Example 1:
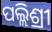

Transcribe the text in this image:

ପଲ୍ଲିଶ୍ରୀ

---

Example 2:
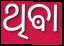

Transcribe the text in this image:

ଥିଵା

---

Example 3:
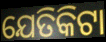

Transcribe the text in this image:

ଯେତିକିଟା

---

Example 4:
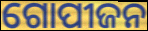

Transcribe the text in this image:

ଗୋପୀଜନ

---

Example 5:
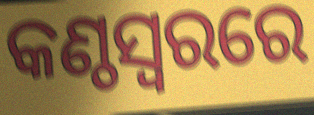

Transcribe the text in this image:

କଣ୍ଠସ୍ୱରରେ